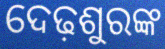
ଦେଢ଼ଶୁରଙ୍କ